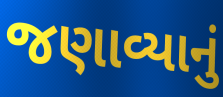
જણાવ્યાનું